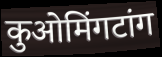
कुओमिंगटांग